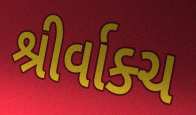
શ્રીર્વાક્ચ